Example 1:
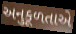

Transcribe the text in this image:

અનુકૂળતાએ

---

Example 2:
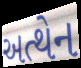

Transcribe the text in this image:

અત્થેન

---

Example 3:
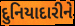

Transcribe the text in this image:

દુનિયાદારીને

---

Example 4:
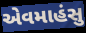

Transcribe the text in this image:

એવમાહંસુ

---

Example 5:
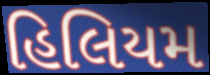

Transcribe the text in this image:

હિલિયમ